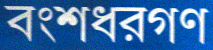
বংশধরগণ